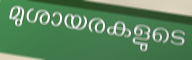
മുശായരകളുടെ